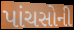
પાંચસોની